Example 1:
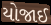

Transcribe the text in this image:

યોજાઈ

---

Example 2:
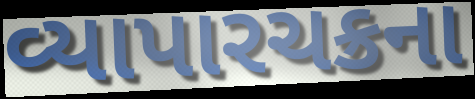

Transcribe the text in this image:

વ્યાપારચક્રના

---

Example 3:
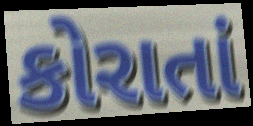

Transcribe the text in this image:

કોરાતાં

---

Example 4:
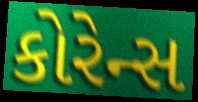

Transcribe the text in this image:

કોરેન્સ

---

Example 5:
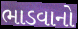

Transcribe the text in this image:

ભાડવાનો